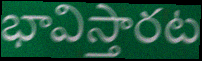
భావిస్తారట